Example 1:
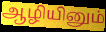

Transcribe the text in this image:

ஆழியினும்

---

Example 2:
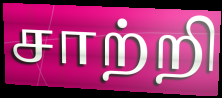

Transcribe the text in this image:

சாற்றி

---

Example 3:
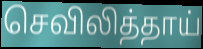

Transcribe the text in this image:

செவிலித்தாய்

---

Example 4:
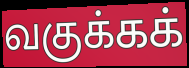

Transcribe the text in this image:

வகுக்கக்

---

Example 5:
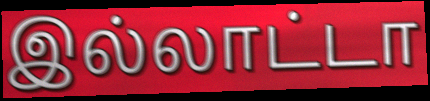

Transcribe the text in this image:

இல்லாட்டா